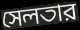
সেলতার